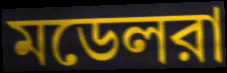
মডেলরা